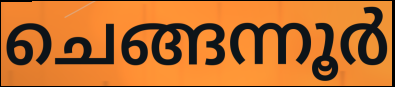
ചെങ്ങന്നൂർ